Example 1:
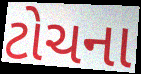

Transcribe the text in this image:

ટોચના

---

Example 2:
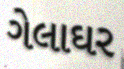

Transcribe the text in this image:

ગેલાઘર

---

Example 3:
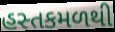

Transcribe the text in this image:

હસ્તકમળથી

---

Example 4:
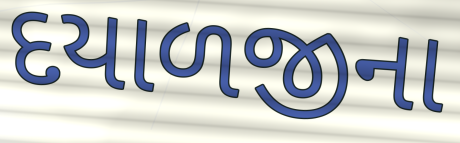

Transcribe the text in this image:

દયાળજીના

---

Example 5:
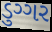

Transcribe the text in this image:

ડુગ્ગર